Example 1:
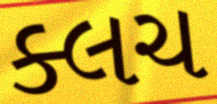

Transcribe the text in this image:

ક્લચ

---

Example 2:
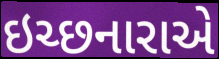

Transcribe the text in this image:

ઇચ્છનારાએ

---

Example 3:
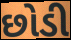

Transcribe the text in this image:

છોડી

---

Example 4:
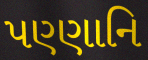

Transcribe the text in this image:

પણ્ણાનિ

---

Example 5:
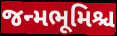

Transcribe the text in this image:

જન્મભૂમિશ્ચ